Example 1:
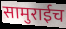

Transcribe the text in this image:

सामुराईच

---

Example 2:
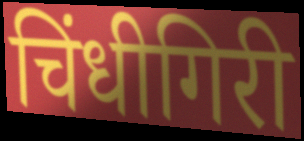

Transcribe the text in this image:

चिंधीगिरी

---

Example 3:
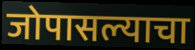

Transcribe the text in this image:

जोपासल्याचा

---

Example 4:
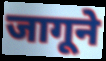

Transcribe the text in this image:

जागूने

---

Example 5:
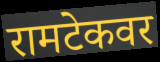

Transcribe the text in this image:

रामटेकवर